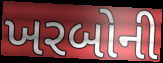
ખરબોની